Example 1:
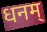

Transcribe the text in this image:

धनम्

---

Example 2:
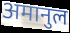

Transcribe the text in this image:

अमानुल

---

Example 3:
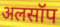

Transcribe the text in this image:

अलसॉप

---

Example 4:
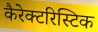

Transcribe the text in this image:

कैरेक्टरिस्टिक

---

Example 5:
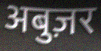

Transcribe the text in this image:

अबुज़र